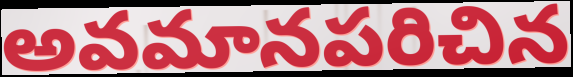
అవమానపరిచిన